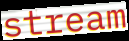
stream